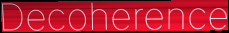
Decoherence